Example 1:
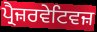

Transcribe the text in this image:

ਪ੍ਰੈਜ਼ਰਵੇਟਿਵਜ਼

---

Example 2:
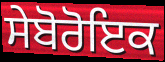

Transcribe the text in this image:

ਸੇਬੋਰੋਇਕ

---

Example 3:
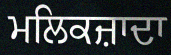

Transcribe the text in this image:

ਮਲਿਕਜ਼ਾਦਾ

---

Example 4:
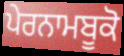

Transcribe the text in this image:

ਪੇਰਨਾਮਬੂਕੋ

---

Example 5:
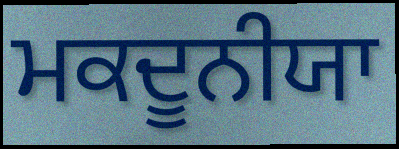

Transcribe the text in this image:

ਮਕਦੂਨੀਯਾ